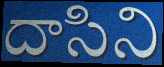
దాసిని